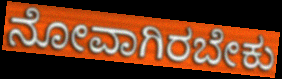
ನೋವಾಗಿರಬೇಕು